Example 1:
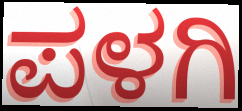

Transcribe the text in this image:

ಪಳಗಿ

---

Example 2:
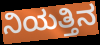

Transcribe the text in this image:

ನಿಯತ್ತಿನ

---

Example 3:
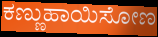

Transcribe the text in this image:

ಕಣ್ಣುಹಾಯಿಸೋಣ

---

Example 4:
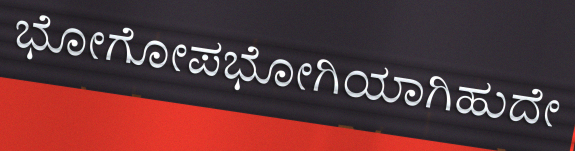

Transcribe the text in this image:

ಭೋಗೋಪಭೋಗಿಯಾಗಿಹುದೇ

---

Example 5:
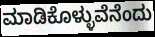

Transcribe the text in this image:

ಮಾಡಿಕೊಳ್ಳುವೆನೆಂದು